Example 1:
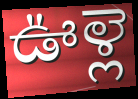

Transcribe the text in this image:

ఊళ్లె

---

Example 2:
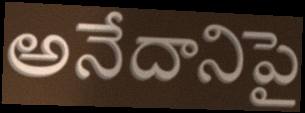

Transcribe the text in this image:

అనేదానిపై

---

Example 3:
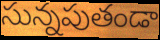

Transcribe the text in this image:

సున్నపుతండా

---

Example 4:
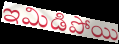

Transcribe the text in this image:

ఇమిడిపోయి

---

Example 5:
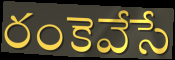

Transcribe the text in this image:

రంకెవేసే